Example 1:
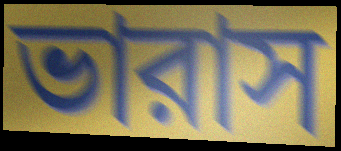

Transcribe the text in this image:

ভারাস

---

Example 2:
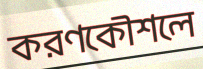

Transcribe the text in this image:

করণকৌশলে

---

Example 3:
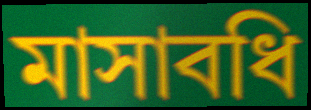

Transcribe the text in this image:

মাসাবধি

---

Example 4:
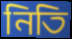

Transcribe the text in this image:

নিতি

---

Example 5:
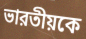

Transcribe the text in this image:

ভারতীয়কে